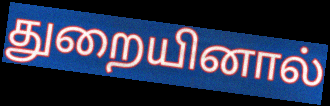
துறையினால்